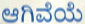
ಆಗಿವೆಯೆ